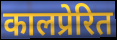
कालप्रेरित